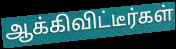
ஆக்கிவிட்டீர்கள்